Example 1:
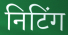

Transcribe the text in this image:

निटिंग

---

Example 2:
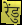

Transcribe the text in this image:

रेंडु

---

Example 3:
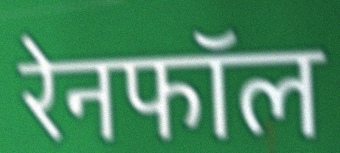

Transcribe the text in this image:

रेनफॉल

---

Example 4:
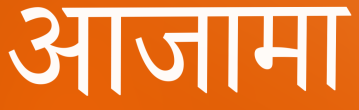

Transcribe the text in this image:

आजामा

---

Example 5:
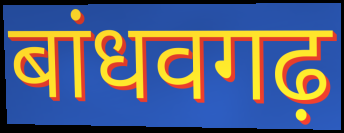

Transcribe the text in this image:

बांधवगढ़